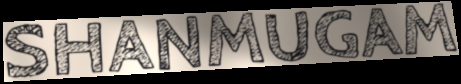
SHANMUGAM